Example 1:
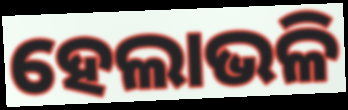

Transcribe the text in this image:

ହେଲାଭଳି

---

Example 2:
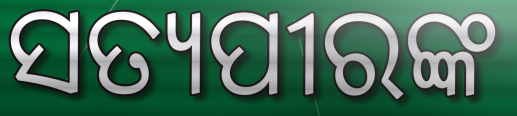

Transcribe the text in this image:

ସତ୍ୟପୀରଙ୍କ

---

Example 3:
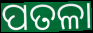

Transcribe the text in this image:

ପତଳା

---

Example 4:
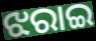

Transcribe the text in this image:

ଝରାଇ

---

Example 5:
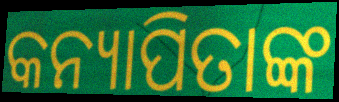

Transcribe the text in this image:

କନ୍ୟାପିତାଙ୍କ